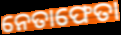
ନେତାଫେତା